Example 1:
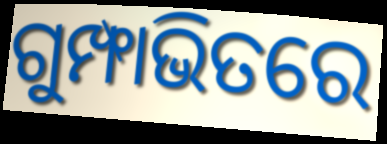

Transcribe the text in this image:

ଗୁମ୍ଫାଭିତରେ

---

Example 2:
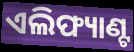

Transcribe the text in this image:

ଏଲିଫ୍ୟାଣ୍ଟ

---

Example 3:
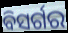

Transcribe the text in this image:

ବିସର୍ଗର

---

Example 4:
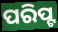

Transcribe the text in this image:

ପରିପ୍ଟ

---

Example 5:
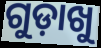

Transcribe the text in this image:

ଗୁଡ଼ାଖୁ